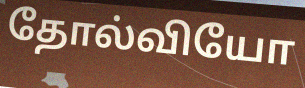
தோல்வியோ